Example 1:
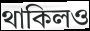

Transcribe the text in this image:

থাকিলও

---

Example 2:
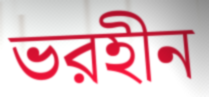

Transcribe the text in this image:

ভরহীন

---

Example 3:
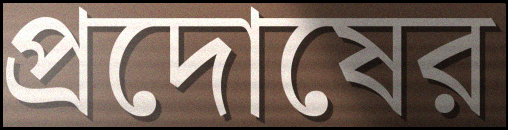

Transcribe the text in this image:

প্রদোষের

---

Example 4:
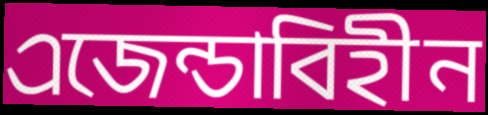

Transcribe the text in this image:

এজেন্ডাবিহীন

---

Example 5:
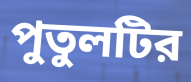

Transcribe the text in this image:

পুতুলটির